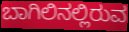
ಬಾಗಿಲಿನಲ್ಲಿರುವ